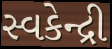
સ્વકેન્દ્રી